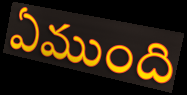
ఏముంది